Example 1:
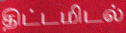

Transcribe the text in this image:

திட்டமிடல்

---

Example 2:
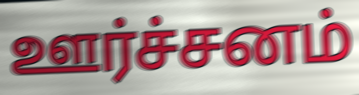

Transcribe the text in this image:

ஊர்ச்சனம்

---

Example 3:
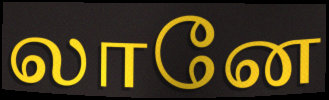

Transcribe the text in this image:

லானே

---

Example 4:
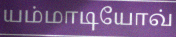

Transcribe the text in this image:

யம்மாடியோவ்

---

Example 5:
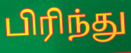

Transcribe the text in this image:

பிரிந்து